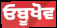
ਓਬੂਖੋਵ